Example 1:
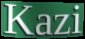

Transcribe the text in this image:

Kazi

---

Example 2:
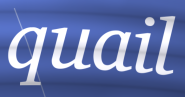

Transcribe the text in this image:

quail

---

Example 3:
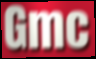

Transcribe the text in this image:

Gmc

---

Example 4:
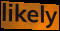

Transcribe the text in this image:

likely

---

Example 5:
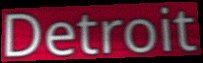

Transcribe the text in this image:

Detroit